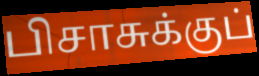
பிசாசுக்குப்